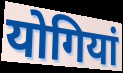
योगियां